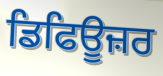
ਡਿਫਿਊਜ਼ਰ